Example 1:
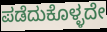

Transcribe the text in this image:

ಪಡೆದುಕೊಳ್ಳದೇ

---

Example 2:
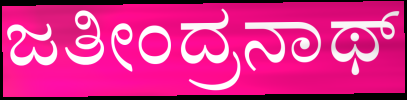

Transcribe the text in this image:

ಜತೀಂದ್ರನಾಥ್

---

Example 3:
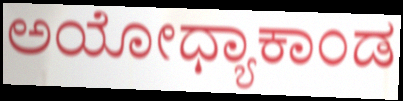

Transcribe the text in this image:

ಅಯೋಧ್ಯಾಕಾಂಡ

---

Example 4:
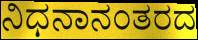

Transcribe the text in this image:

ನಿಧನಾನಂತರದ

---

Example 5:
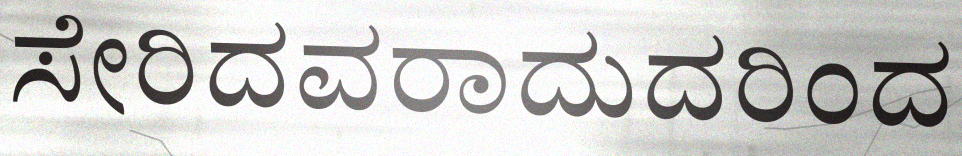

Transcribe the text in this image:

ಸೇರಿದವರಾದುದರಿಂದ